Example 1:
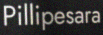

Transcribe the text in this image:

Pillipesara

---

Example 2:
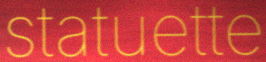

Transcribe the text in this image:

statuette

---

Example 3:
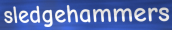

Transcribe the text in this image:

sledgehammers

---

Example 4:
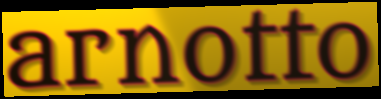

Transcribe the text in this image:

arnotto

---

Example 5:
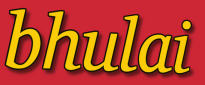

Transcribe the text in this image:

bhulai